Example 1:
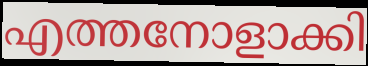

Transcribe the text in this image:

എത്തനോളാക്കി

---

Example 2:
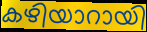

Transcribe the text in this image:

കഴിയാറായി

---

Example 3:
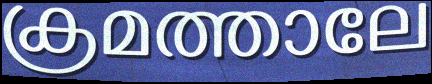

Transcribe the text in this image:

ക്രമത്താലേ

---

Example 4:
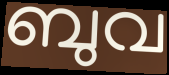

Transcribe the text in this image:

ബുവ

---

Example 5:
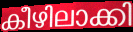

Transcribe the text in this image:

കീഴിലാക്കി